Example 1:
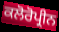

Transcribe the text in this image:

ਕਲੋਰੋਪ੍ਰੀਨ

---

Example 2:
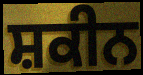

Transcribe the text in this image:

ਸ਼ਕੀਨ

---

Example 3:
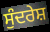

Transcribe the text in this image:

ਸੁੰਦਰੇਸ਼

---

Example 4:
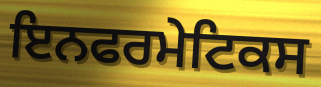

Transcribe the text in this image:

ਇਨਫਰਮੇਟਿਕਸ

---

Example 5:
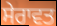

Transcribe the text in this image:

ਸੇਰਾਵਤ